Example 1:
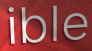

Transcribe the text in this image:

ible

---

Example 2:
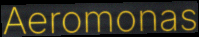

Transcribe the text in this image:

Aeromonas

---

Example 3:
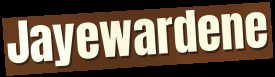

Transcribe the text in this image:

Jayewardene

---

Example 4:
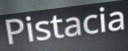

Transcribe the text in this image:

Pistacia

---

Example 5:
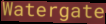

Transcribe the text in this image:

Watergate